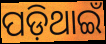
ପଡ଼ିଥାଇଁ